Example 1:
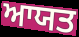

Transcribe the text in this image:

ਆਯਤ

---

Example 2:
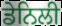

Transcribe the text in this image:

ਡੇਨਿਲੀ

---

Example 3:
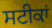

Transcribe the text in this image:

ਸਟੀਕਾਂ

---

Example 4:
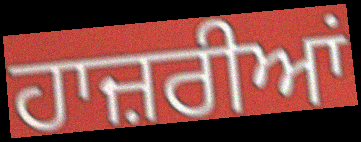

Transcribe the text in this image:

ਹਾਜ਼ਰੀਆਂ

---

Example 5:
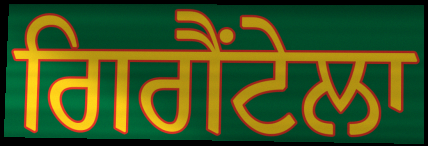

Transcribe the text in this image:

ਗਿਗੈਂਟੇਲਾ